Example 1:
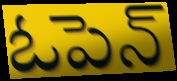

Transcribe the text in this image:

ఓపెన్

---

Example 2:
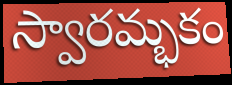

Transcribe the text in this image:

స్వారమ్భకం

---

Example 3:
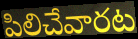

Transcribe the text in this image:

పిలిచేవారట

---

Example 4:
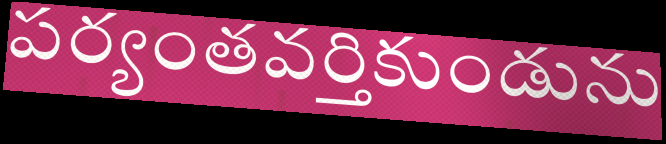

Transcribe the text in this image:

పర్యంతవర్తికుండును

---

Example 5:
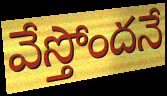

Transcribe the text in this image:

వేస్తోందనే